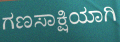
ಗಣಸಾಕ್ಷಿಯಾಗಿ